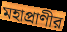
মহাপ্রাণীর